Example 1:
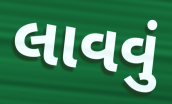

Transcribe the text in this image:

લાવવું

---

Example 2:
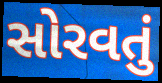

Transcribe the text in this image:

સોરવતું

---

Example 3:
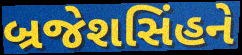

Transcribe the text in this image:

બ્રજેશસિંહને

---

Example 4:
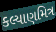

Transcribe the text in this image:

કલ્યાણમિત્ર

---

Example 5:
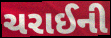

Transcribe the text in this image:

ચરાઈની